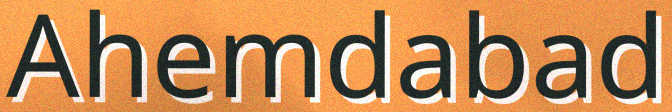
Ahemdabad